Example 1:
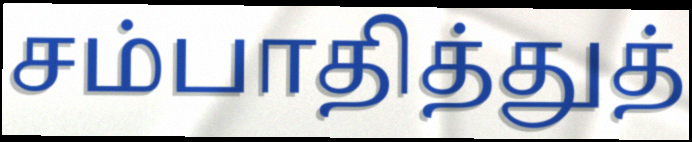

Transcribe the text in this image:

சம்பாதித்துத்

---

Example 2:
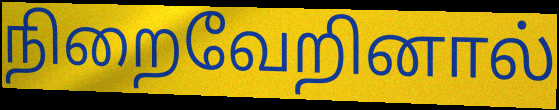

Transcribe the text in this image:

நிறைவேறினால்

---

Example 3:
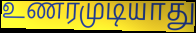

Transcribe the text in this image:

உணரமுடியாது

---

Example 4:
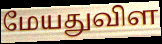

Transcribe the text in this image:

மேயதுவிள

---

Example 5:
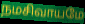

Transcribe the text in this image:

நமசிவாயமே